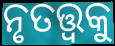
ନୃତତ୍ତ୍ଵକୁ